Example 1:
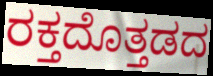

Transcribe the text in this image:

ರಕ್ತದೊತ್ತಡದ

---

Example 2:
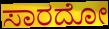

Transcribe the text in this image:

ಸಾರದೋ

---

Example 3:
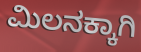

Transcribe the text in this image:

ಮಿಲನಕ್ಕಾಗಿ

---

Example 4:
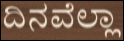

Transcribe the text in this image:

ದಿನವೆಲ್ಲಾ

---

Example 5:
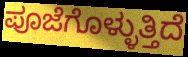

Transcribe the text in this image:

ಪೂಜೆಗೊಳ್ಳುತ್ತಿದೆ